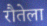
रौतेला